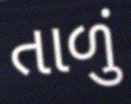
તાળું